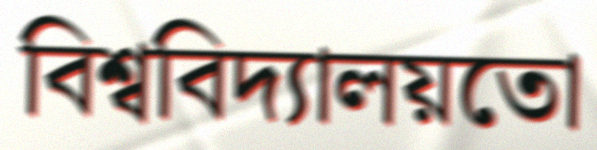
বিশ্ববিদ্যালয়তো